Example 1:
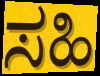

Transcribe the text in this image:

ಸಹಿ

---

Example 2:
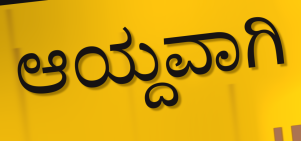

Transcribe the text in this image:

ಆಯ್ದವಾಗಿ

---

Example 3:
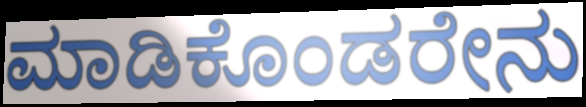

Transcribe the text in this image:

ಮಾಡಿಕೊಂಡರೇನು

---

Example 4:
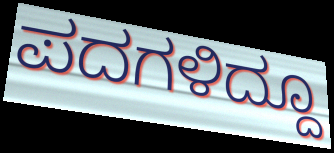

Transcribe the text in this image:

ಪದಗಳಿದ್ದೂ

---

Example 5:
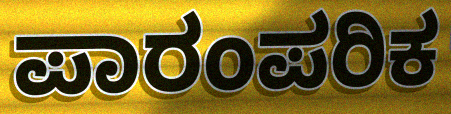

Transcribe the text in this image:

ಪಾರಂಪರಿಕ